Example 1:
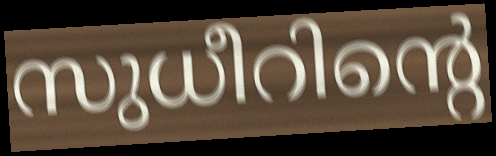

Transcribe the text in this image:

സുധീറിന്റെ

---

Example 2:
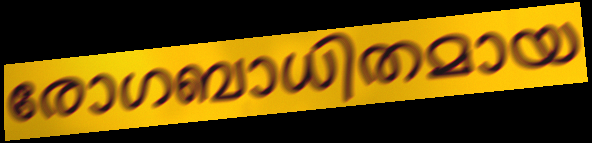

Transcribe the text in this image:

രോഗബാധിതമായ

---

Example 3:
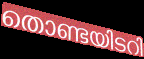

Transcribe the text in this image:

തൊണ്ടയിടറി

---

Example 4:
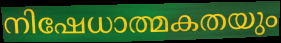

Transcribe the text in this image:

നിഷേധാത്മകതയും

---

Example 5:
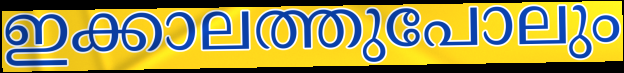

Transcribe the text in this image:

ഇക്കാലത്തുപോലും